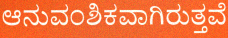
ಆನುವಂಶಿಕವಾಗಿರುತ್ತವೆ